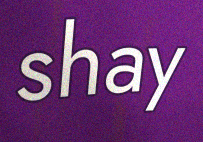
shay